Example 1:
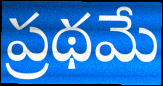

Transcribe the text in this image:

ప్రథమే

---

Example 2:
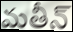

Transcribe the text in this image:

మతీన్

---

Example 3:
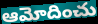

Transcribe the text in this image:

ఆమోదించు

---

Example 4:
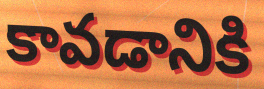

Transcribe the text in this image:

కావడానికి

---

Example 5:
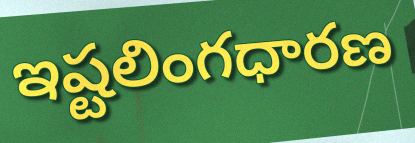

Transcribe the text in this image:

ఇష్టలింగధారణ